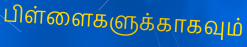
பிள்ளைகளுக்காகவும்